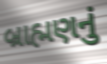
બ્રાહ્મણનું